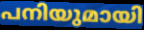
പനിയുമായി